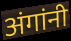
अंगांनी